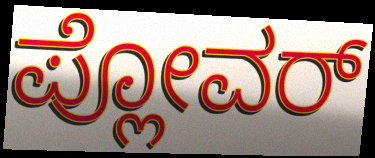
ಪ್ಲೋವರ್